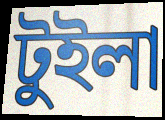
টুইলা